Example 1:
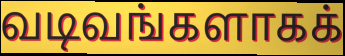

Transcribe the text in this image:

வடிவங்களாகக்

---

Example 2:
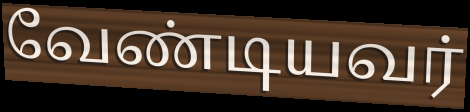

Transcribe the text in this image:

வேண்டியவர்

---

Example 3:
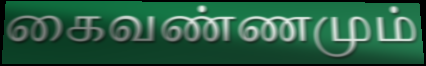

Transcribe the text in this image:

கைவண்ணமும்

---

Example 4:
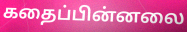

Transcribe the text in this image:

கதைப்பின்னலை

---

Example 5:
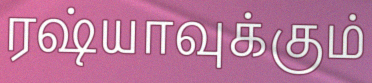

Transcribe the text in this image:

ரஷ்யாவுக்கும்